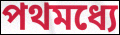
পথমধ্যে